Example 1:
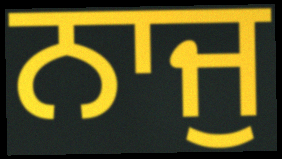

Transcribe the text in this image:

ਨਾਜੁ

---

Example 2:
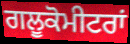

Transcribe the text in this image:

ਗਲੂਕੋਮੀਟਰਾਂ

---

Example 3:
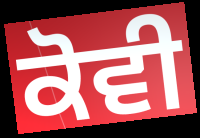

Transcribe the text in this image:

ਕੋਵੀ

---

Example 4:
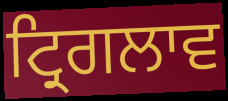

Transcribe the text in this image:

ਟ੍ਰਿਗਲਾਵ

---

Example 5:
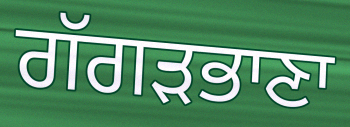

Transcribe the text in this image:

ਗੱਗੜਭਾਣਾ